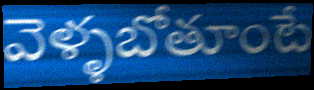
వెళ్ళబోతూంటే